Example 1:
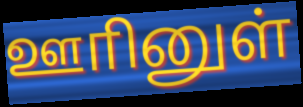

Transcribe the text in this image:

ஊரினுள்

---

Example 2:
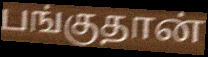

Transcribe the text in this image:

பங்குதான்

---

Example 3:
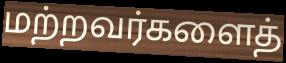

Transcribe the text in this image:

மற்றவர்களைத்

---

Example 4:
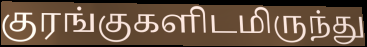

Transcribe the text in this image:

குரங்குகளிடமிருந்து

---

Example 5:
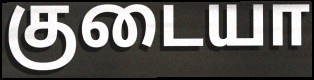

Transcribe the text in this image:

குடையா